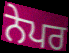
ਨੇਪਰ